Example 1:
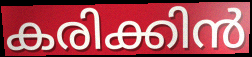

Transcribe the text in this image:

കരിക്കിൻ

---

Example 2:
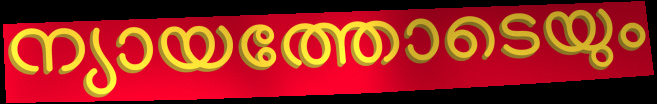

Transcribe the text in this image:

ന്യായത്തോടെയും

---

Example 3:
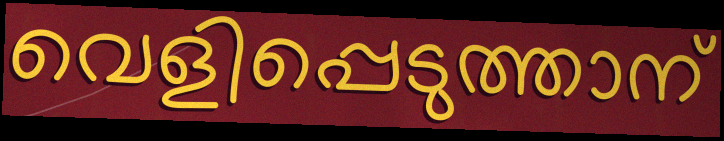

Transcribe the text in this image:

വെളിപ്പെടുത്താന്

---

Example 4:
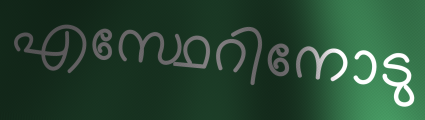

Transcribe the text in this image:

എസ്ഥേറിനോടു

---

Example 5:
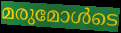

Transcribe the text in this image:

മരുമോൾടെ